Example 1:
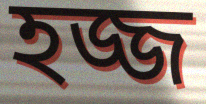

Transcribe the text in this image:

হজ্জ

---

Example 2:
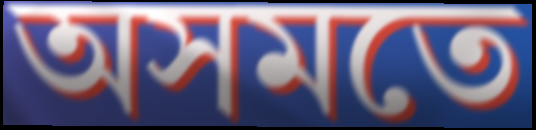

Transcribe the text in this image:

অসমতে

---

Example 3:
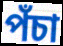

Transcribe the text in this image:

পঁচা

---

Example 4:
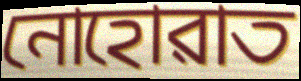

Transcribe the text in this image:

নোহোৱাত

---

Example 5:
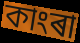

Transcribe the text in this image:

কাংৰা